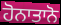
ਹੋਨਾਤਾਨੋ